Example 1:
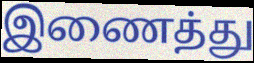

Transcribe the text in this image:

இணைத்து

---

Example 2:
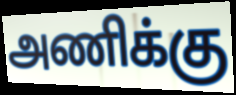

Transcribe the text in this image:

அணிக்கு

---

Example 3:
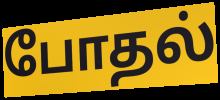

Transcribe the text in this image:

போதல்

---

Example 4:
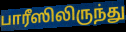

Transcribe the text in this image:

பாரீஸிலிருந்து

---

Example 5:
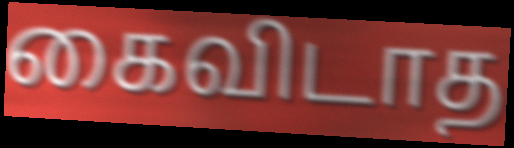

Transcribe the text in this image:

கைவிடாத